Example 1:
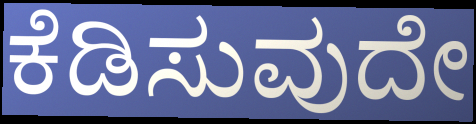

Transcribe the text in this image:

ಕೆಡಿಸುವುದೇ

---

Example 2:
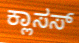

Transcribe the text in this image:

ಕ್ಲಾಸಸ್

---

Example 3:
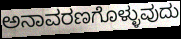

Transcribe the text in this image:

ಅನಾವರಣಗೊಳ್ಳುವುದು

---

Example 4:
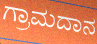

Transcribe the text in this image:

ಗ್ರಾಮದಾನ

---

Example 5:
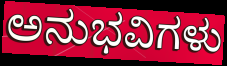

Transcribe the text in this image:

ಅನುಭವಿಗಳು